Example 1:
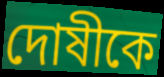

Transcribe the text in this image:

দোষীকে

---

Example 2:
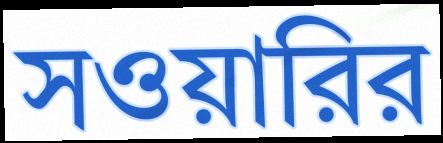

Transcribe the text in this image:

সওয়ারির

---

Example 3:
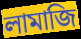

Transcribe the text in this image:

লামাজি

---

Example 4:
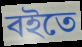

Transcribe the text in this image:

বইতে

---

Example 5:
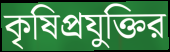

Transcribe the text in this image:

কৃষিপ্রযুক্তির